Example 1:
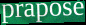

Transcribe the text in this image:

prapose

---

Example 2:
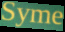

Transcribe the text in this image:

Syme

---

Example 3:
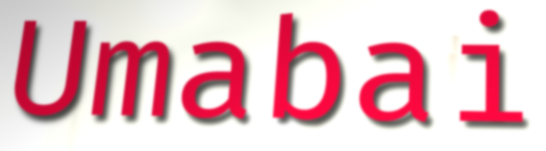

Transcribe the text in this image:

Umabai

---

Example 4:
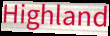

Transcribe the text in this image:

Highland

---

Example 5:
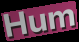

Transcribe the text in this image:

Hum